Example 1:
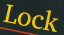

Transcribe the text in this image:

Lock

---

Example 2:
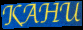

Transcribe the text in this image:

KAHU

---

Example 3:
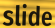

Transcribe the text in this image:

slide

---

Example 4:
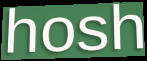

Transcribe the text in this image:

hosh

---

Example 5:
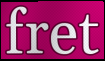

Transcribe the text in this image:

fret